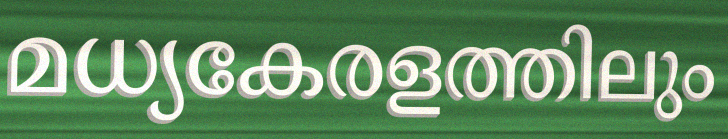
മധ്യകേരളത്തിലും